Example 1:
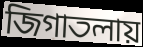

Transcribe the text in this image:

জিগাতলায়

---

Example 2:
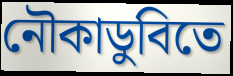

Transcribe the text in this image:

নৌকাডুবিতে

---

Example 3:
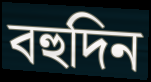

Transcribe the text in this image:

বহুদিন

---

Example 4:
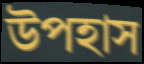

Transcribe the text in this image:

উপহাস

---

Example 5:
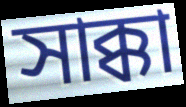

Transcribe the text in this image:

সাক্কা